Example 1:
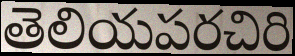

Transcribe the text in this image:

తెలియపరచిరి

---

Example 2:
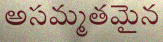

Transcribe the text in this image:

అసమ్మతమైన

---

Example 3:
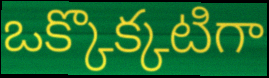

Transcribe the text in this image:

ఒక్కొక్కటిగా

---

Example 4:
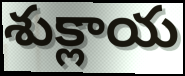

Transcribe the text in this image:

శుక్లాయ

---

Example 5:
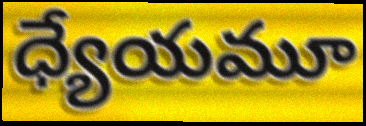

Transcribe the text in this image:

ధ్యేయమూ